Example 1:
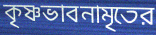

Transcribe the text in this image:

কৃষ্ণভাবনামৃতের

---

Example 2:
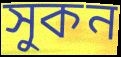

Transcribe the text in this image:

সুকন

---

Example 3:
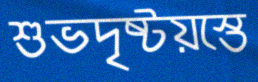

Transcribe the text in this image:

শুভদৃষ্টয়স্তে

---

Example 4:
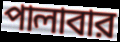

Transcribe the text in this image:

পালাবার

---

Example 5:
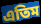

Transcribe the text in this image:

এতিম